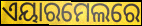
ଏୟାରମେଲରେ